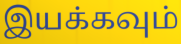
இயக்கவும்